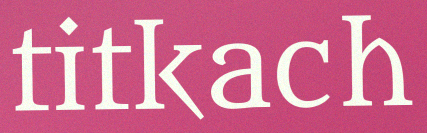
titkach